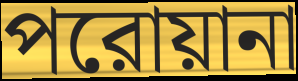
পরোয়ানা